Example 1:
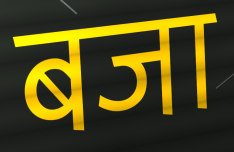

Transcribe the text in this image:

बजा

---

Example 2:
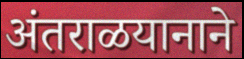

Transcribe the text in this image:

अंतराळयानाने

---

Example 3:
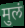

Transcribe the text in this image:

मुलं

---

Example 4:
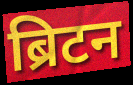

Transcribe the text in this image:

ब्रिटन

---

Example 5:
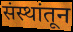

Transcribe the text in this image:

संस्थांतून